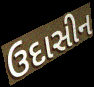
ઉદાસીન